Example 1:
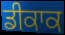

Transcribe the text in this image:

ਡੀਕਾਕ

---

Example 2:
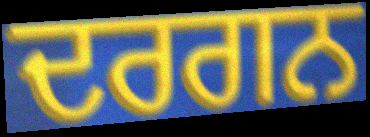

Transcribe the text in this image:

ਦਰਗਨ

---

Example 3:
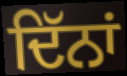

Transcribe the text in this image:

ਦਿੱਨਾਂ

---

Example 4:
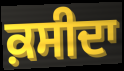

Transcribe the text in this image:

ਕ਼ਸੀਦਾ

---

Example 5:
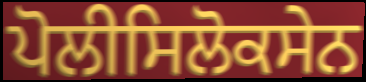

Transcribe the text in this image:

ਪੋਲੀਸਿਲੋਕਸੇਨ